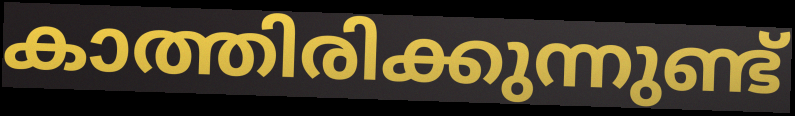
കാത്തിരിക്കുന്നുണ്ട്